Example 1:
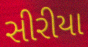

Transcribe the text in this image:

સીરીયા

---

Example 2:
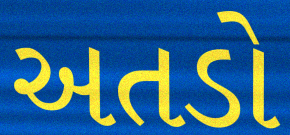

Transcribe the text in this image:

અતડો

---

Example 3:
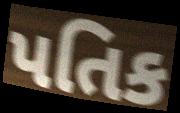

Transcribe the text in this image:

પતિક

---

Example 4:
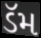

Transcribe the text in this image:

ડૅમ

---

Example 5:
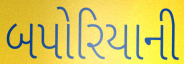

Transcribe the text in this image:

બપોરિયાની